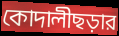
কোদালীছড়ার